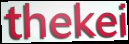
thekei